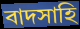
বাদসাহি